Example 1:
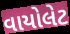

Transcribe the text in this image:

વાયોલેટ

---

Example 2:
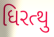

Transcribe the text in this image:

ધિરત્થુ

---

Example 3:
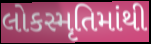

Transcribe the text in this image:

લોકસ્મૃતિમાંથી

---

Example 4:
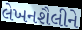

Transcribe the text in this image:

લેખનશૈલીને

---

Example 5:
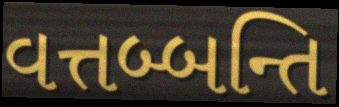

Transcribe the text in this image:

વત્તબ્બન્તિ